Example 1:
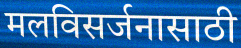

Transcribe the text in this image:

मलविसर्जनासाठी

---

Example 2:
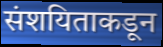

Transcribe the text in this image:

संशयिताकडून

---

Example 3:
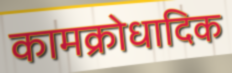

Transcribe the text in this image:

कामक्रोधादिक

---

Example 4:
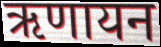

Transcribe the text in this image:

ऋणायन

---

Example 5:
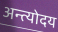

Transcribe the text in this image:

अन्त्योदय